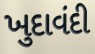
ખુદાવંદી